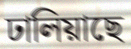
ঢালিয়াছে